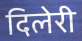
दिलेरी